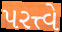
પરત્ત્વે